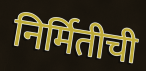
निर्मितीची